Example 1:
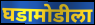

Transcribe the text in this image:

घडामोडीला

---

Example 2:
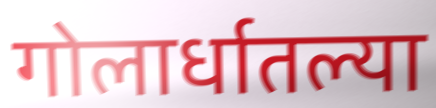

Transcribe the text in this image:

गोलार्धातल्या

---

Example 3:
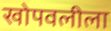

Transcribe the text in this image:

खोपवलीला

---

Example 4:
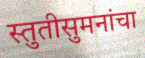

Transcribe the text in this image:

स्तुतीसुमनांचा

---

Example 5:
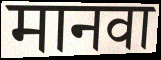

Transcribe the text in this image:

मानवा